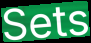
Sets